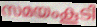
സമയംകൂടി